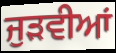
ਜੁੜਵੀਆਂ